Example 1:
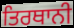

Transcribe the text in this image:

ਤਿਰਥਾਨੀ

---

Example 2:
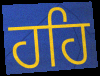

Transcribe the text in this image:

ਹਹਿ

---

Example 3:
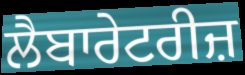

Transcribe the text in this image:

ਲੈਬਾਰੇਟਰੀਜ਼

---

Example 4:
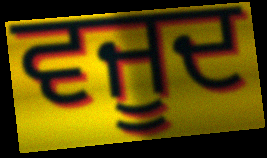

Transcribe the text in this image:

ਵਜੂਦ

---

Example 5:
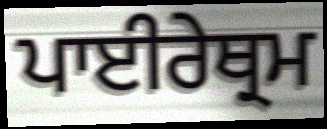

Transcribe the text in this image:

ਪਾਈਰੇਥ੍ਰਮ